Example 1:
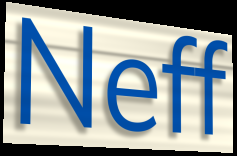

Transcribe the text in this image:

Neff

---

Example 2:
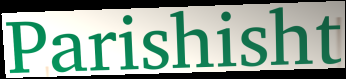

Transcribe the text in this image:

Parishisht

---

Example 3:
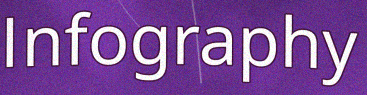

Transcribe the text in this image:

Infography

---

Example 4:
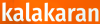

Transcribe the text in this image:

kalakaran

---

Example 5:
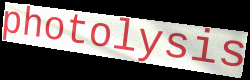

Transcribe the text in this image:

photolysis